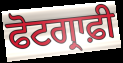
ਫੋਟਗ੍ਰਾਫ਼ੀ